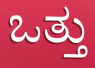
ಒತ್ತು